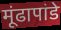
मूंढापांडे